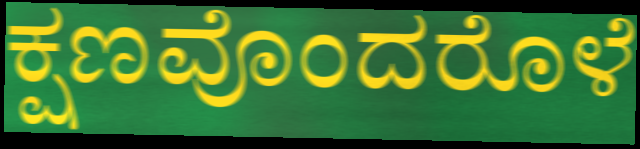
ಕ್ಷಣವೊಂದರೊಳೆ